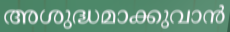
അശുദ്ധമാക്കുവാൻ